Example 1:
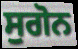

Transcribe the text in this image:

ਸੁਗੋਨ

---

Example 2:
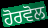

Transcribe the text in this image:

ਹੋਰਵੋਲ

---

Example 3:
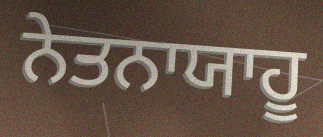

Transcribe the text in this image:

ਨੇਤਨਾਯਾਹੂ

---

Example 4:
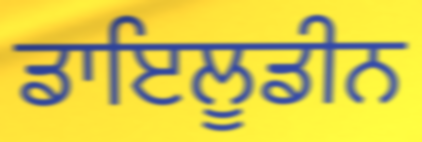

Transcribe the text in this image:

ਡਾਇਲੂਡੀਨ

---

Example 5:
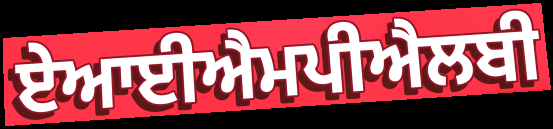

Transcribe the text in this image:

ਏਆਈਐਮਪੀਐਲਬੀ